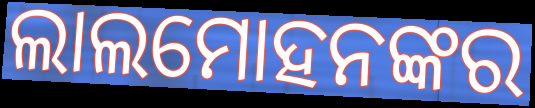
ଲାଲମୋହନଙ୍କର